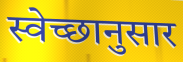
स्वेच्छानुसार